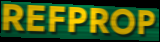
REFPROP